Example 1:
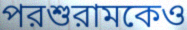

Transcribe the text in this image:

পরশুরামকেও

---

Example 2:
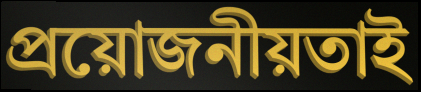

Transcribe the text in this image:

প্রয়োজনীয়তাই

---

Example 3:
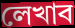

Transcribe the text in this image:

লেখাব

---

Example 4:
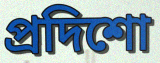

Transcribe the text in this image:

প্রদিশো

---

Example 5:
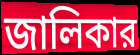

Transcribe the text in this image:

জালিকার